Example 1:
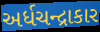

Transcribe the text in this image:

અર્ધચન્દ્રાકાર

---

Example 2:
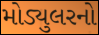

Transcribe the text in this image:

મોડ્યુલરનો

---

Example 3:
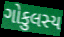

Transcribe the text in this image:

ગોકુલસ્ય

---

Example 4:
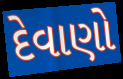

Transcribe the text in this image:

દેવાણો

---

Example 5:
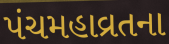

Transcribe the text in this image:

પંચમહાવ્રતના